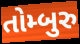
તોમ્બુરુ